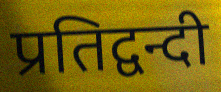
प्रतिद्वन्दी